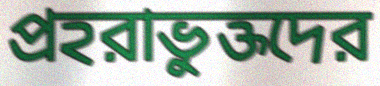
প্রহরাভুক্তদের